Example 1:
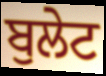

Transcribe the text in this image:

ਬੁਲੇਟ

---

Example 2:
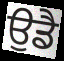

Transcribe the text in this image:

ਉਡੈ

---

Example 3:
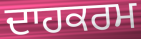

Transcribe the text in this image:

ਦਾਹਕਰਮ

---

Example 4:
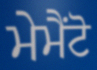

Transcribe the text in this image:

ਮੇਮੈਂਟੋ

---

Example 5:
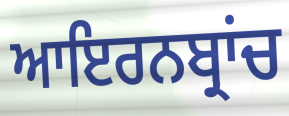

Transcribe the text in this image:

ਆਇਰਨਬ੍ਰਾਂਚ